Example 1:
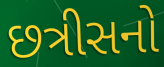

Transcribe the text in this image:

છત્રીસનો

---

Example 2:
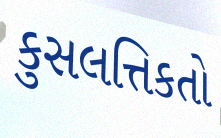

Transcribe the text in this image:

કુસલત્તિકતો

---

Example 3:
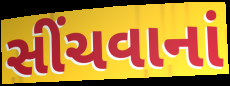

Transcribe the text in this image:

સીંચવાનાં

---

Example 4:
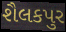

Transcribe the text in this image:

શૈલકપુર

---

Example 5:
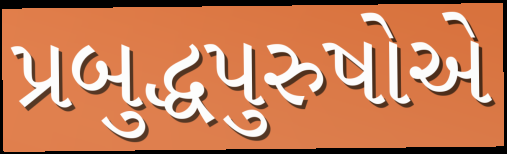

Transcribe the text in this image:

પ્રબુદ્ધપુરુષોએ